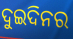
ଦୁଇଦିନର